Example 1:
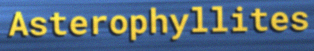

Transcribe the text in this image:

Asterophyllites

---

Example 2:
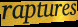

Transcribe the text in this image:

raptures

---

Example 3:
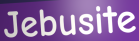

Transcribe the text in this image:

Jebusite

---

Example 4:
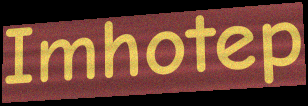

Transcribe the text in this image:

Imhotep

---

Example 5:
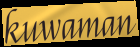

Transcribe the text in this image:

kuwaman